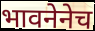
भावनेनेच